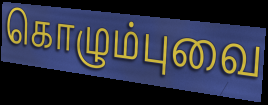
கொழும்புவை